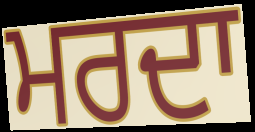
ਮਰਦਾ